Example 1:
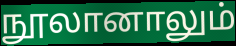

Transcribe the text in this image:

நூலானாலும்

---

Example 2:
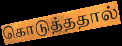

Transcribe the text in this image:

கொடுத்ததால்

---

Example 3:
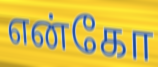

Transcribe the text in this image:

என்கோ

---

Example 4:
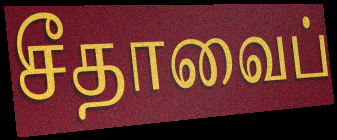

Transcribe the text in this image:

சீதாவைப்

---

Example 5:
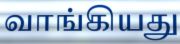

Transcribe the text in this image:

வாங்கியது